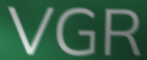
VGR